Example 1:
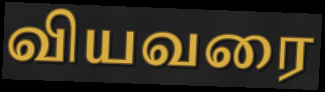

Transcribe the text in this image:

வியவரை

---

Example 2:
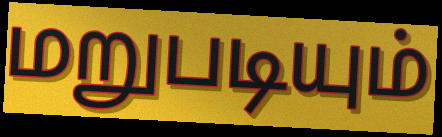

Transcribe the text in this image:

மறுபடியும்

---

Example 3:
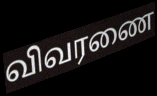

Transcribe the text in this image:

விவரணை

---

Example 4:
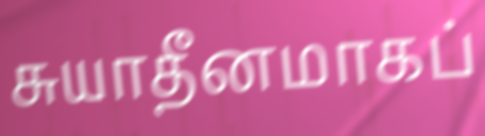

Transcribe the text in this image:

சுயாதீனமாகப்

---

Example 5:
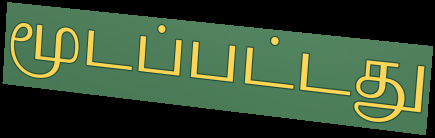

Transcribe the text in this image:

மூடப்பட்டது